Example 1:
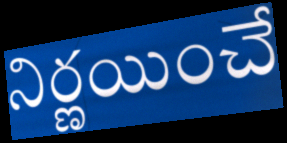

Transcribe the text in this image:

నిర్ణయించే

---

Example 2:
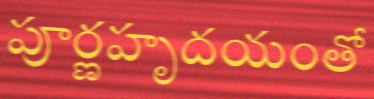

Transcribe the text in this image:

పూర్ణహృదయంతో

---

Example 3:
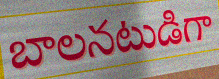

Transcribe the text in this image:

బాలనటుడిగా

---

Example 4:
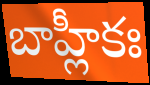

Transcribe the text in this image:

బాహ్లీకః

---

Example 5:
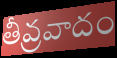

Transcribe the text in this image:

తీవ్రవాదం